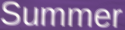
Summer